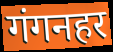
गंगनहर